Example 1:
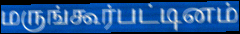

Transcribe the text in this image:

மருங்கூர்பட்டினம்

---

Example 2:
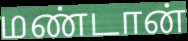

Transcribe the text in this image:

மண்டான்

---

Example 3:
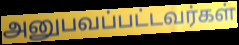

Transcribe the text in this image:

அனுபவப்பட்டவர்கள்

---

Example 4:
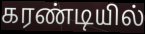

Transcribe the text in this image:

கரண்டியில்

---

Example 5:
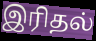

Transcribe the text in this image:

இரிதல்